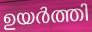
ഉയർത്തി